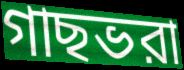
গাছভরা